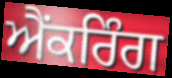
ਐਂਕਰਿੰਗ